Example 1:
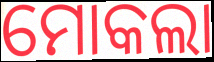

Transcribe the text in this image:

ମୋକଲା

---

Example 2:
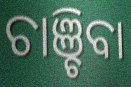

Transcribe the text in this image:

ଚାଞ୍ଚିବା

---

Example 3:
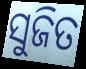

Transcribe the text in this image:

ସୁଜିତ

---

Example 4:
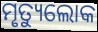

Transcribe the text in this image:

ମୃତ୍ୟୁଲୋକ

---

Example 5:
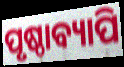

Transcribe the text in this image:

ପୃଷ୍ଠାବ୍ୟାପି